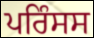
ਪਰਿੰਸਸ